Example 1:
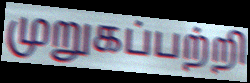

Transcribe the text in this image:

முறுகப்பற்றி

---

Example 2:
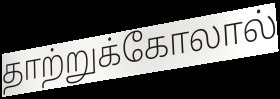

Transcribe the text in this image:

தாற்றுக்கோலால்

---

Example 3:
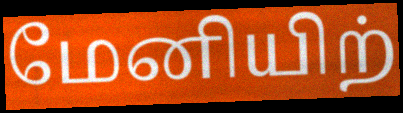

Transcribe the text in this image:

மேனியிற்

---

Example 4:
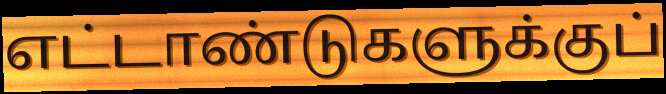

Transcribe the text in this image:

எட்டாண்டுகளுக்குப்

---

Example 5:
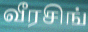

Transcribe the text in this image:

வீரசிங்